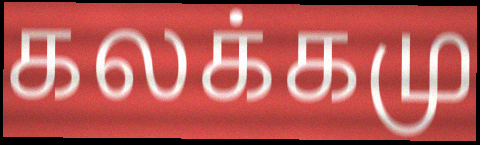
கலக்கமு